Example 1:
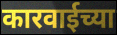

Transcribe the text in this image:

कारवाईच्या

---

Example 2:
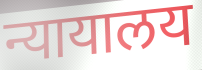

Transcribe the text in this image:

न्यायालय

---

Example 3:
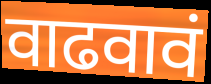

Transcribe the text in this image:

वाढवावं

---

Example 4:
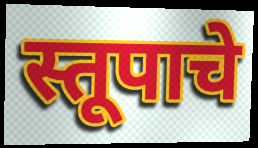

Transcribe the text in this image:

स्तूपाचे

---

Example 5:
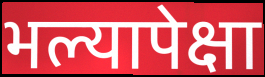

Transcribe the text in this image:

भल्यापेक्षा